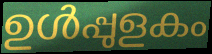
ഉൾപ്പുളകം